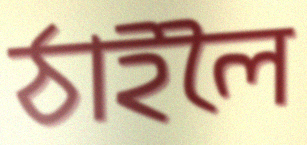
ঠাইলৈ